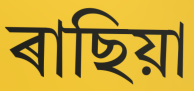
ৰাছিয়া